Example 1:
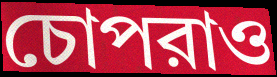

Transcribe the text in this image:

চোপরাও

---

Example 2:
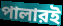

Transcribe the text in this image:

পালারই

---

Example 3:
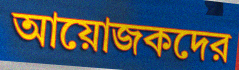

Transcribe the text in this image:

আয়োজকদের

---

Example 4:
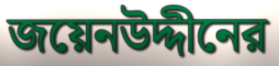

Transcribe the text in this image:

জয়েনউদ্দীনের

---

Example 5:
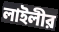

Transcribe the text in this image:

লাইলীর